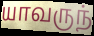
யாவருந்